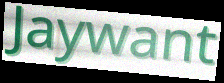
Jaywant